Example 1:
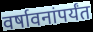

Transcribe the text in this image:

वर्षावनांपर्यंत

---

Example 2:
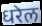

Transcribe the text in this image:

धरेल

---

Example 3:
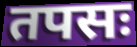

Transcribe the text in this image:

तपसः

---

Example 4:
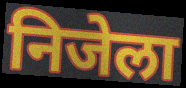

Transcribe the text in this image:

निजेला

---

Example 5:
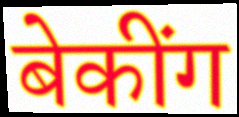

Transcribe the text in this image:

बेकींग